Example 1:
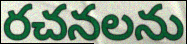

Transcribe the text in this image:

రచనలను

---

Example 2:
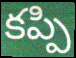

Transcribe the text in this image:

కప్పి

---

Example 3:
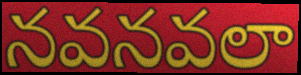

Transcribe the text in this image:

నవనవలా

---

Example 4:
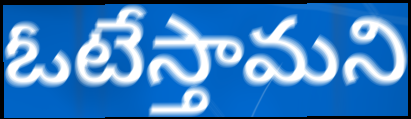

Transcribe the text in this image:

ఓటేస్తామని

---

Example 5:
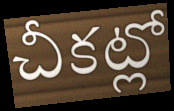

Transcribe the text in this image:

చీకట్లో